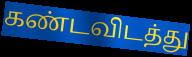
கண்டவிடத்து